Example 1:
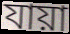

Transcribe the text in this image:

যায়া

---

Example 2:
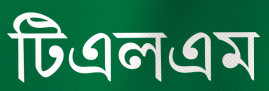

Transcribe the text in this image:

টিএলএম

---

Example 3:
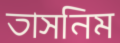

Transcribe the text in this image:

তাসনিম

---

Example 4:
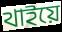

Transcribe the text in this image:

থাইয়ে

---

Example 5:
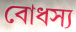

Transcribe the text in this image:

বোধস্য